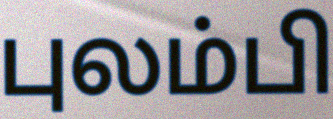
புலம்பி